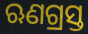
ଋଣଗ୍ରସ୍ତ